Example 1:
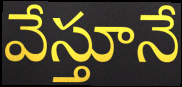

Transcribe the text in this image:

వేస్తూనే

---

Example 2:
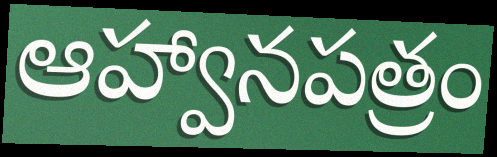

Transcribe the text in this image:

ఆహ్వానపత్రం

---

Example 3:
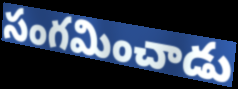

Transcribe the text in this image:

సంగమించాడు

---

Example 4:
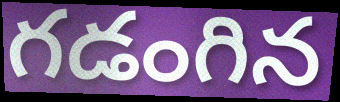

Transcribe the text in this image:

గడంగిన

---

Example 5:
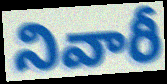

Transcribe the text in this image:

నివారీ